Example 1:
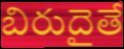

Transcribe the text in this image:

బిరుదైతే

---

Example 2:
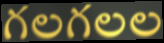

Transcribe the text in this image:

గలగలల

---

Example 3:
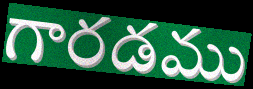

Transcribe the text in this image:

గారడము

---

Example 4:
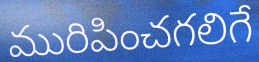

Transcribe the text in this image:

మురిపించగలిగే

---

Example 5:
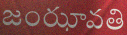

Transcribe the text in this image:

జంఝావతి